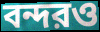
বন্দরও